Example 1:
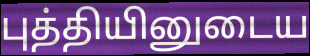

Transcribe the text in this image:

புத்தியினுடைய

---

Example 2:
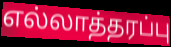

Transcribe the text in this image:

எல்லாத்தரப்பு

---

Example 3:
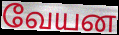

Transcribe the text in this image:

வேயன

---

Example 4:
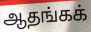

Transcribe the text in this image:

ஆதங்கக்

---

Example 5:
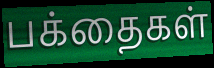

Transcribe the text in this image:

பக்தைகள்